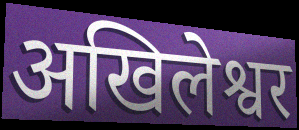
अखिलेश्वर